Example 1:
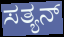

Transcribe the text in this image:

ಸತ್ಯನ್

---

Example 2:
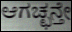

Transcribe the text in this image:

ಆಗಚ್ಛನ್ತೇ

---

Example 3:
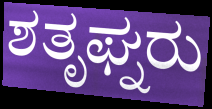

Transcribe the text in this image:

ಶತೃಘ್ನರು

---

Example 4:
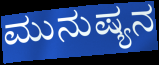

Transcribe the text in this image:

ಮುನುಷ್ಯನ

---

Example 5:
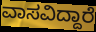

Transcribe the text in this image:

ವಾಸವಿದ್ದಾರೆ